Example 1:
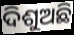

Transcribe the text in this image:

ଦିଶୁଅଛି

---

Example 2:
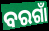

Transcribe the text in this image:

ବରଗାଁ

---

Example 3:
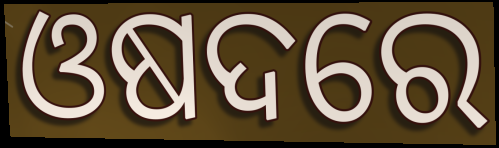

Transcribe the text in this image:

ଓଷଦରେ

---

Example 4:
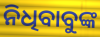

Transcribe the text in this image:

ନିଧିବାବୁଙ୍କ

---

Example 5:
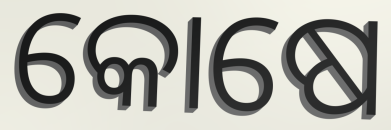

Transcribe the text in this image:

କୋଷେ